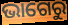
ଭାଗେରୁ